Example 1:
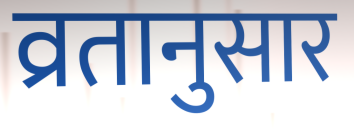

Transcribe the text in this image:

व्रतानुसार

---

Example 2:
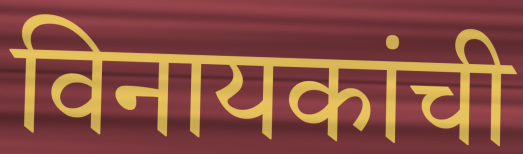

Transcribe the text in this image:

विनायकांची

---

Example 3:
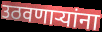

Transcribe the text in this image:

उठवणाऱ्यांना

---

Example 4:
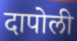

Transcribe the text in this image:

दापोली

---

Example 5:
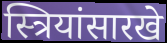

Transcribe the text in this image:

स्त्रियांसारखे